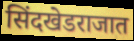
सिंदखेडराजात